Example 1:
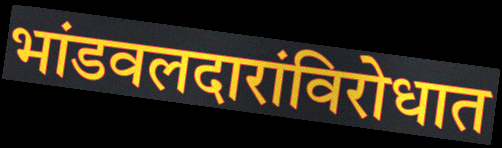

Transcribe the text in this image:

भांडवलदारांविरोधात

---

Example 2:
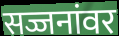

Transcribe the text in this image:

सज्जनांवर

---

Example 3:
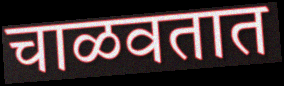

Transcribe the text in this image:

चाळवतात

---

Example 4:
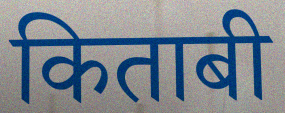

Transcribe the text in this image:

किताबी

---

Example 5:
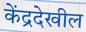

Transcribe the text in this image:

केंद्रदेखील